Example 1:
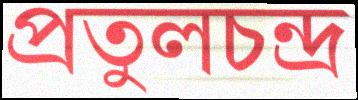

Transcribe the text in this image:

প্রতুলচন্দ্র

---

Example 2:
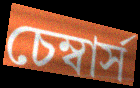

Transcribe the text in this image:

চেম্বার্স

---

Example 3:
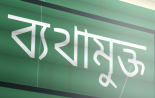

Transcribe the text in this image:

ব্যথামুক্ত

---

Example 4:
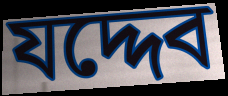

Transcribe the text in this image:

যদ্দেব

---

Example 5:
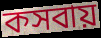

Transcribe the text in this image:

কসবায়